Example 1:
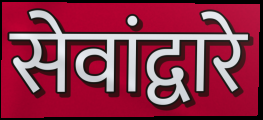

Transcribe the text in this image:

सेवांद्वारे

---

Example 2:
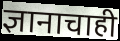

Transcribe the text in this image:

ज्ञानाचाही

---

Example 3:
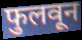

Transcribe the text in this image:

फुलवून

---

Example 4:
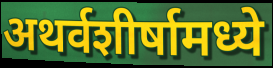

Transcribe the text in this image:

अथर्वशीर्षामध्ये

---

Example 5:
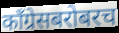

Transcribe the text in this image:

काँग्रेसबरोबरच